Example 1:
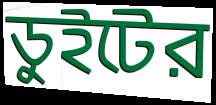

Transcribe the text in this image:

ডুইটের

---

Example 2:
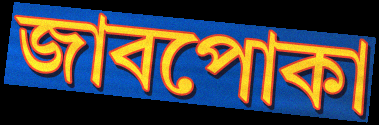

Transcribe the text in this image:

জাবপোকা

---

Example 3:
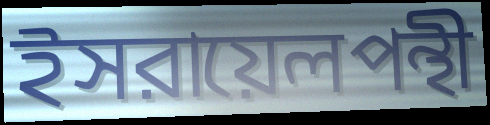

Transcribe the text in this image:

ইসরায়েলপন্থী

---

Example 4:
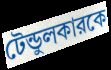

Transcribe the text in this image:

টেন্ডুলকারকে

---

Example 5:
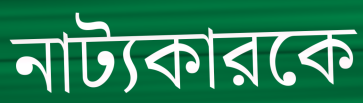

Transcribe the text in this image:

নাট্যকারকে